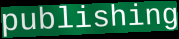
publishing